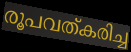
രൂപവത്കരിച്ച